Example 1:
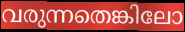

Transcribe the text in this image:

വരുന്നതെങ്കിലോ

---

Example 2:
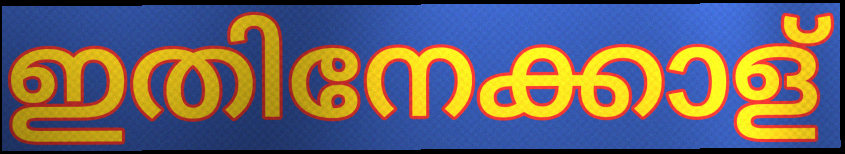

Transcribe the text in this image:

ഇതിനേക്കാള്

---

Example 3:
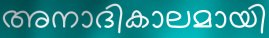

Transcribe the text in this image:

അനാദികാലമായി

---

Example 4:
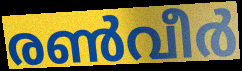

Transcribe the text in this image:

രൺവീർ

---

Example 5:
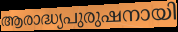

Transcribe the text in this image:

ആരാദ്ധ്യപുരുഷനായി